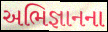
અભિજ્ઞાનના